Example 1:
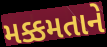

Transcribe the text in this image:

મક્કમતાને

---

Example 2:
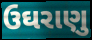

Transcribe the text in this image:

ઉઘરાણુ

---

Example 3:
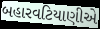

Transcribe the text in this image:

બહારવટિયાણીએ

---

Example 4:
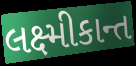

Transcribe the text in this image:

લક્ષ્મીકાન્ત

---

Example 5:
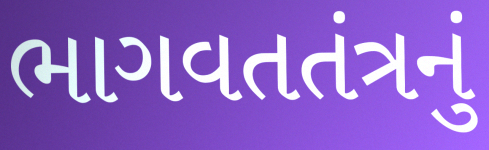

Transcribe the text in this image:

ભાગવતતંત્રનું